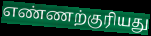
எண்ணற்குரியது